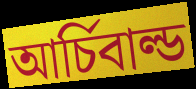
আর্চিবাল্ড